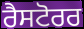
ਰੈਸਟੋਰਰ